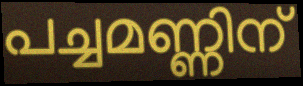
പച്ചമണ്ണിന്